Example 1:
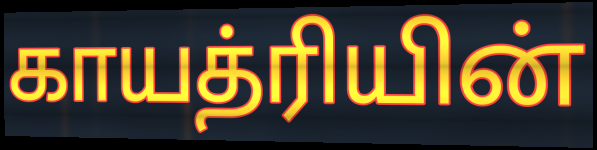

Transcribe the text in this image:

காயத்ரியின்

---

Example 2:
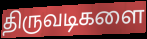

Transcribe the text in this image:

திருவடிகளை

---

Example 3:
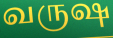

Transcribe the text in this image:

வருஷ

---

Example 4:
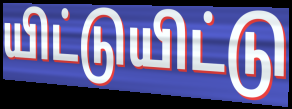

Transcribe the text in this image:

யிட்டுயிட்டு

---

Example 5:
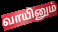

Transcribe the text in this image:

வாயினும்